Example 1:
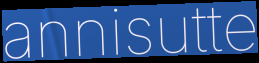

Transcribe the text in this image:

annisutte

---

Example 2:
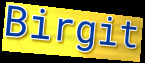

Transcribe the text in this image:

Birgit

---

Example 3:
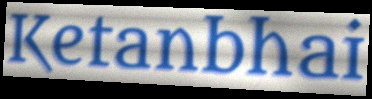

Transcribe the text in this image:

Ketanbhai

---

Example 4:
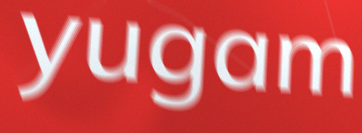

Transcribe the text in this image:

yugam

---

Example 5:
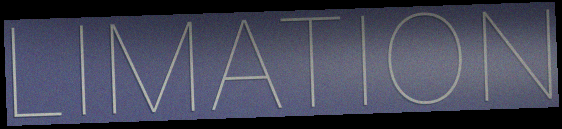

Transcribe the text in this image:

LIMATION